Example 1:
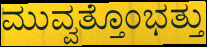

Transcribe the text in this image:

ಮುವ್ವತ್ತೊಂಭತ್ತು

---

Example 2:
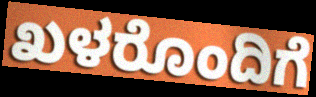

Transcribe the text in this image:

ಖಳರೊಂದಿಗೆ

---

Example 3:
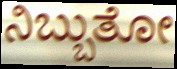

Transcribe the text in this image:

ನಿಬ್ಬುತೋ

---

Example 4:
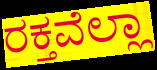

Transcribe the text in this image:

ರಕ್ತವೆಲ್ಲಾ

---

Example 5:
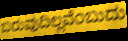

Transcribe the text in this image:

ಬರುವುದಿಲ್ಲವೆಂಬುದು